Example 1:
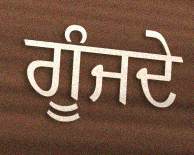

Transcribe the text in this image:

ਗੂੰਜਦੇ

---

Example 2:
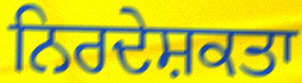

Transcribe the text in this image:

ਨਿਰਦੇਸ਼ਕਤਾ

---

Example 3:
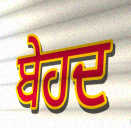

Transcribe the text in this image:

ਬੇਹਦ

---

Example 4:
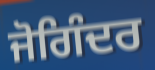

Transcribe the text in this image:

ਜੋਗਿੰਦਰ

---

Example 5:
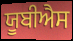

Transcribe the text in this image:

ਯੂਬੀਐਸ